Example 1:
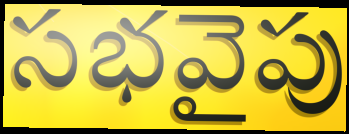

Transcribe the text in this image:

సభవైపు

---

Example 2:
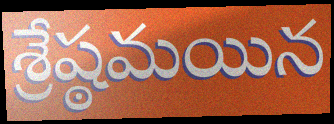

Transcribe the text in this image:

శ్రేష్ఠమయిన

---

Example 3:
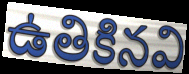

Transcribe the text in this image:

ఉతికినవి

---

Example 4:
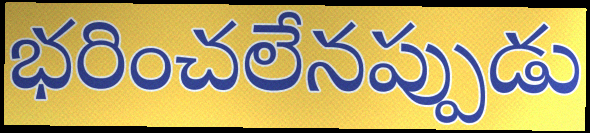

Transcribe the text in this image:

భరించలేనప్పుడు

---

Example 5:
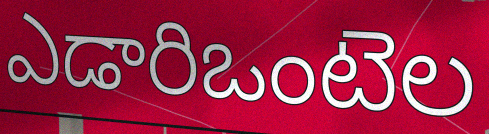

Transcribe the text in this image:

ఎడారిఒంటెల